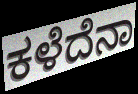
ಕಳೆದೆನಾ